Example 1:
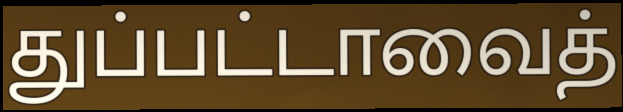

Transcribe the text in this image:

துப்பட்டாவைத்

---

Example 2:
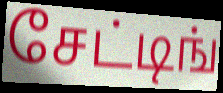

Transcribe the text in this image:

சேட்டிங்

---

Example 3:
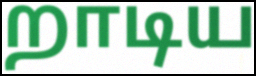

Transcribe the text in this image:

றாடிய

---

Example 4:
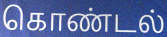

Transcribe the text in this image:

கொண்டல்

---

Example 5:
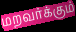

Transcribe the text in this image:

மறவர்க்கும்